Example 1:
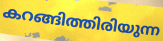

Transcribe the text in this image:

കറങ്ങിത്തിരിയുന്ന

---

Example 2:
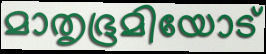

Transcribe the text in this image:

മാതൃഭൂമിയോട്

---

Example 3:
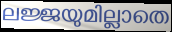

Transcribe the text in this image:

ലജ്ജയുമില്ലാതെ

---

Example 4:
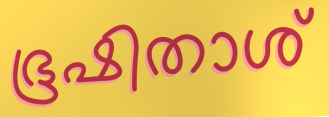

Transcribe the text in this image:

ഭൂഷിതാശ്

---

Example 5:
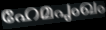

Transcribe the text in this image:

ഹേമപുംഖം